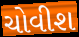
ચોવીશ